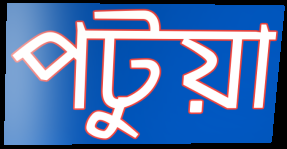
পটুয়া